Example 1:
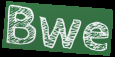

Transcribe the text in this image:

Bwe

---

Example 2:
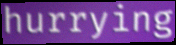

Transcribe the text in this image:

hurrying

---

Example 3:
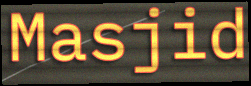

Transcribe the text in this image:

Masjid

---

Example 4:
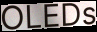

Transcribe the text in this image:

OLEDs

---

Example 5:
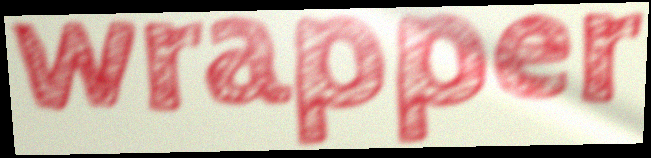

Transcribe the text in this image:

wrapper